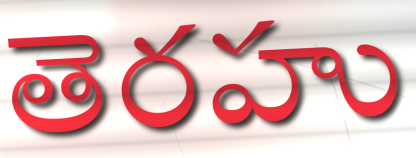
తెరహు